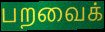
பறவைக்